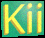
Kii